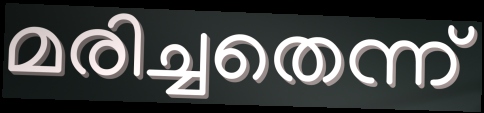
മരിച്ചതെന്ന്